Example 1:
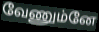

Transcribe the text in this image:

வேணும்னே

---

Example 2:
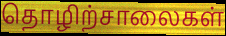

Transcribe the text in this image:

தொழிற்சாலைகள்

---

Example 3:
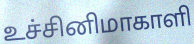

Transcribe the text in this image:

உச்சினிமாகாளி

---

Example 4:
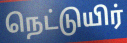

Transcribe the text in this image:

நெட்டுயிர்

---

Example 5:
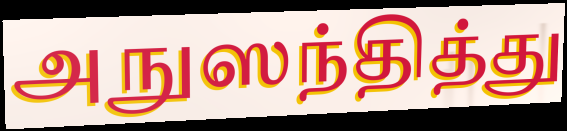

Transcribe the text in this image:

அநுஸந்தித்து